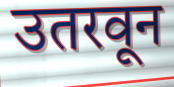
उतरवून